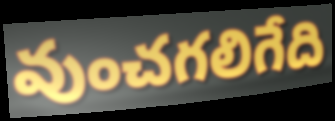
వుంచగలిగేది